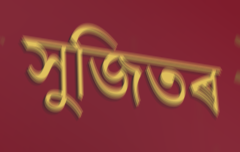
সুজিতৰ